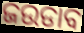
ଜଉଡାବ